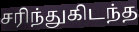
சரிந்துகிடந்த